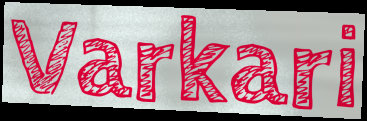
Varkari